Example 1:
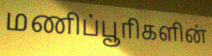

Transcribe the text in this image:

மணிப்பூரிகளின்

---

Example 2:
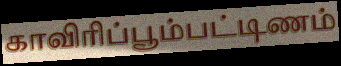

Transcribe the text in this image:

காவிரிப்பூம்பட்டிணம்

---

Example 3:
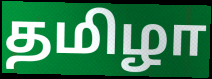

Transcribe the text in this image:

தமிழா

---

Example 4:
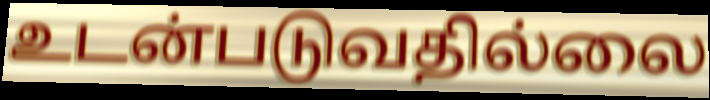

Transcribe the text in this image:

உடன்படுவதில்லை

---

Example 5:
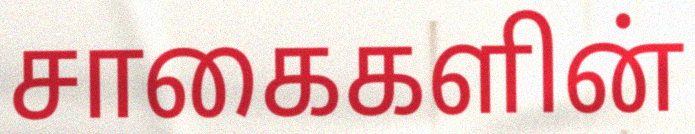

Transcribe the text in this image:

சாகைகளின்